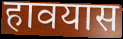
हावयास